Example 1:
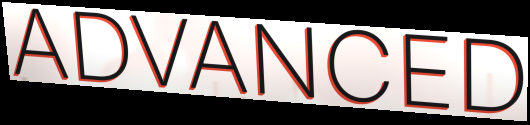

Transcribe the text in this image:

ADVANCED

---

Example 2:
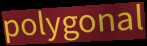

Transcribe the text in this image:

polygonal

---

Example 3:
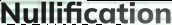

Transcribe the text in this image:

Nullification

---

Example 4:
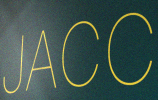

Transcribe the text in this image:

JACC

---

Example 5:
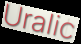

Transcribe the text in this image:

Uralic